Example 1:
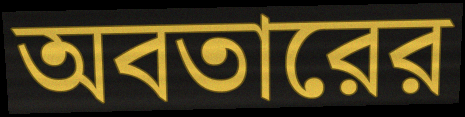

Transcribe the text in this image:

অবতারের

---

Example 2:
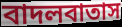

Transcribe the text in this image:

বাদলবাতাস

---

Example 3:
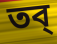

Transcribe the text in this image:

তব্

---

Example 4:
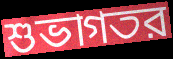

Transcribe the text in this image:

শুভাগতর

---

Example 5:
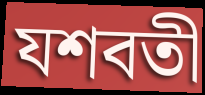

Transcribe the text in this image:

যশবতী